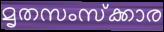
മൃതസംസ്ക്കാര